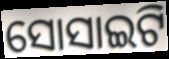
ସୋସାଇଟି